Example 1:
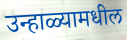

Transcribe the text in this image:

उन्हाळ्यामधील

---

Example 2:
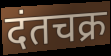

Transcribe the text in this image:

दंतचक्र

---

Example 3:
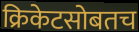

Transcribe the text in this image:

क्रिकेटसोबतच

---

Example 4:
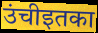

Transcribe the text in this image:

उंचीइतका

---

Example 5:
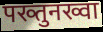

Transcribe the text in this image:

पख्तुनख्वा